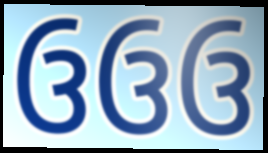
ઉઉઉ